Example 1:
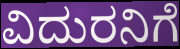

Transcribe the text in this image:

ವಿದುರನಿಗೆ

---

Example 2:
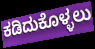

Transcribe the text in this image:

ಕಡಿದುಕೊಳ್ಳಲು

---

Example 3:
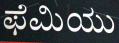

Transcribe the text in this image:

ಫೆಮಿಯು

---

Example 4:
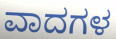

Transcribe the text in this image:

ವಾದಗಳ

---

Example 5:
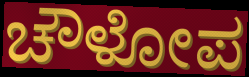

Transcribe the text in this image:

ಚೌಳೋಪ